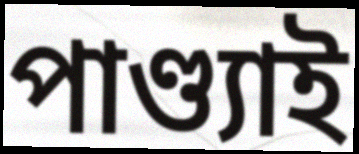
পাণ্ড্যাই